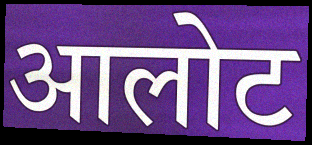
आलोट